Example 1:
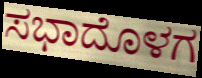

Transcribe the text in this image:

ಸಭಾದೊಳಗ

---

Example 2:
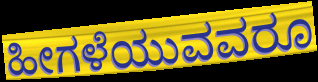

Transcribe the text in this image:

ಹೀಗಳೆಯುವವರೂ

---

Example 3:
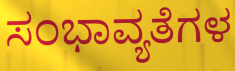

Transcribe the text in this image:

ಸಂಭಾವ್ಯತೆಗಳ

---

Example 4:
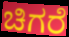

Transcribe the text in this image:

ಚಿಗರೆ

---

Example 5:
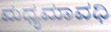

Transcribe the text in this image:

ಮಧ್ಯಮಾವಧಿ